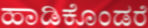
ಹಾಡಿಕೊಂಡರೆ